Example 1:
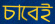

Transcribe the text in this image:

চাবেই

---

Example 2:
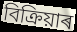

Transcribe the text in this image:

বিক্ৰিয়াৰ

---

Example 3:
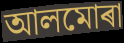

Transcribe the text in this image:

আলমোৰা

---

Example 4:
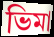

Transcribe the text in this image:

ভিমা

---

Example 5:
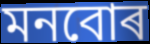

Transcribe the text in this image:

মনবোৰ